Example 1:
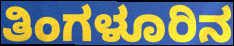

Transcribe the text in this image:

ತಿಂಗಳೂರಿನ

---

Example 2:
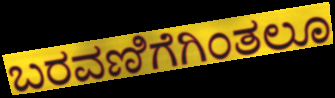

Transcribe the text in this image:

ಬರವಣಿಗೆಗಿಂತಲೂ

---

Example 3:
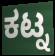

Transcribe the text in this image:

ಕಟ್ನ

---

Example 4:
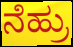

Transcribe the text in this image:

ನೆಹ್ರು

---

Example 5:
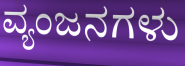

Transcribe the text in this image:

ವ್ಯಂಜನಗಳು